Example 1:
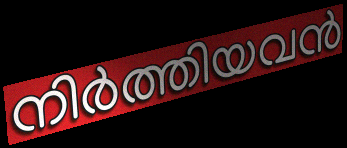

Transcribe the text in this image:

നിർത്തിയവൻ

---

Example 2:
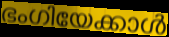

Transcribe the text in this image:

ഭംഗിയേക്കാൾ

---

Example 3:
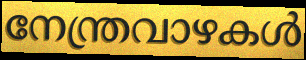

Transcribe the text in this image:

നേന്ത്രവാഴകൾ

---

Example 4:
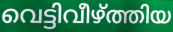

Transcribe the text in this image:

വെട്ടിവീഴ്ത്തിയ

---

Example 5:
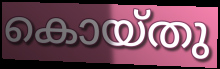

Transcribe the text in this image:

കൊയ്തു